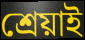
শ্ৰেয়াই